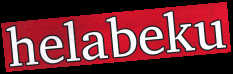
helabeku